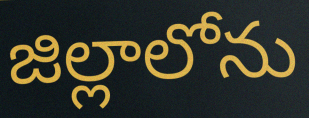
జిల్లాలోను